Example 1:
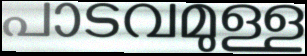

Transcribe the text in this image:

പാടവമുള്ള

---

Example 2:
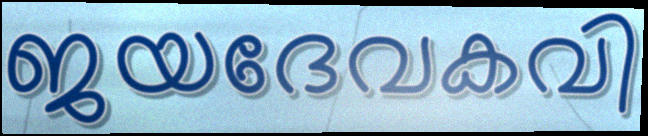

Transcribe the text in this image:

ജയദേവകവി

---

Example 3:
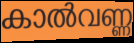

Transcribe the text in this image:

കാൽവണ്ണ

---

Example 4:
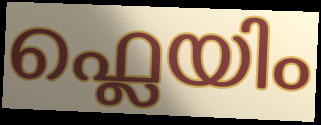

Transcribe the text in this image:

ഫ്ലെയിം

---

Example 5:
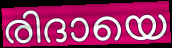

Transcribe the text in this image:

രിദായെ